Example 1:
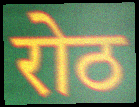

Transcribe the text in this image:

रोठ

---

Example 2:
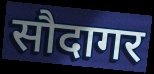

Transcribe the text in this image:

सौदागर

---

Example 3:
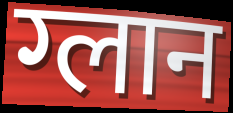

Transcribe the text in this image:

ग्लान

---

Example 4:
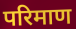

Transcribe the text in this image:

परिमाण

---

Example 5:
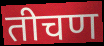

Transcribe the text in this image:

तीचण